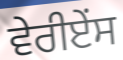
ਵੇਰੀਏਂਸ